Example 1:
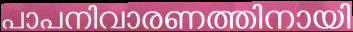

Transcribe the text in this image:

പാപനിവാരണത്തിനായി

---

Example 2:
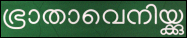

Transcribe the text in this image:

ഭ്രാതാവെനിയ്ക്കു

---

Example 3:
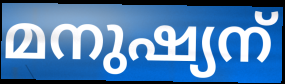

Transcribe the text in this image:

മനുഷ്യന്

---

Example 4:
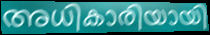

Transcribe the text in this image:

അധികാരിയായി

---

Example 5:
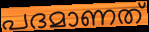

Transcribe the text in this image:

പദമാണത്